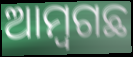
ଆମ୍ୱଗଛ